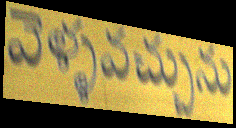
వెళ్ళవచ్చును